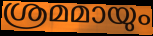
ശ്രമമായും